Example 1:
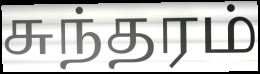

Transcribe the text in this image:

சுந்தரம்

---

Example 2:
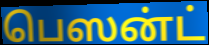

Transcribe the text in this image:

பெஸன்ட்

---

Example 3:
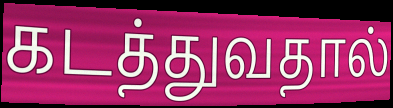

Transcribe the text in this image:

கடத்துவதால்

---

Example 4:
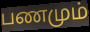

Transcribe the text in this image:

பணமும்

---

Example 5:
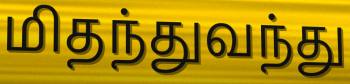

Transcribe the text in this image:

மிதந்துவந்து